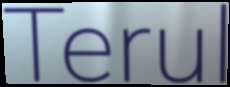
Terul